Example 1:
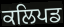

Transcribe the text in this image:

ਕਲਿਪਡ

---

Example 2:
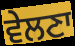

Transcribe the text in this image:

ਵੇਲਣਾ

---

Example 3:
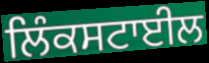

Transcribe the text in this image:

ਲਿੰਕਸਟਾਈਲ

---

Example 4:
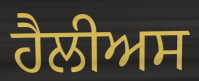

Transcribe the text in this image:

ਹੈਲੀਅਸ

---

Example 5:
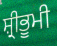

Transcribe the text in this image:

ਸ਼੍ਰੀਭੂਮੀ